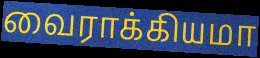
வைராக்கியமா